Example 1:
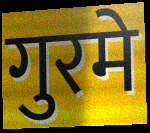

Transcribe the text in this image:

गुरमे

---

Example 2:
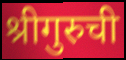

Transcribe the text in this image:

श्रीगुरुची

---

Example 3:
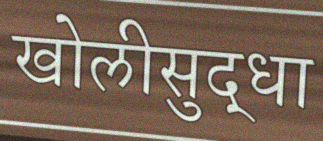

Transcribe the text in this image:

खोलीसुद्धा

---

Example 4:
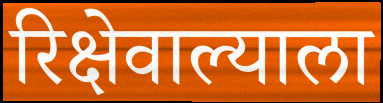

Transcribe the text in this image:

रिक्षेवाल्याला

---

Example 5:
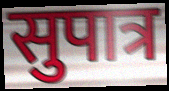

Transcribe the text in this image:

सुपात्र